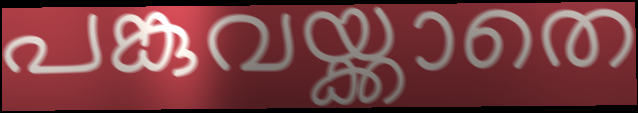
പങ്കുവയ്ക്കാതെ